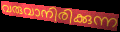
വരുവാനിരിക്കുന്ന